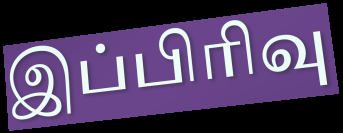
இப்பிரிவு